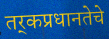
तर्कप्रधानतेचे